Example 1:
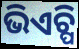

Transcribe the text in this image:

ଭିଏଚ୍ପି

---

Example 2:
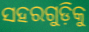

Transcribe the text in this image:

ସହରଗୁଡ଼ିକୁ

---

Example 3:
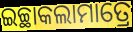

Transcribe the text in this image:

ଇଚ୍ଛାକଲାମାତ୍ରେ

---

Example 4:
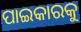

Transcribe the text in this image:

ପାଇକାରକୁ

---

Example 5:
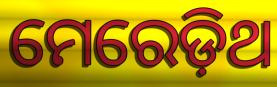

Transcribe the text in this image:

ମେରେଡ଼ିଥ